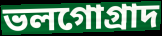
ভলগোগ্রাদ